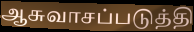
ஆசுவாசப்படுத்தி